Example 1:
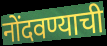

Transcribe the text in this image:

नोंदवण्याची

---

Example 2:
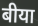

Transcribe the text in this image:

बीया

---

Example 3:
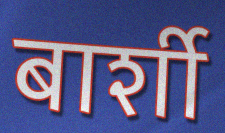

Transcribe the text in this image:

बार्शी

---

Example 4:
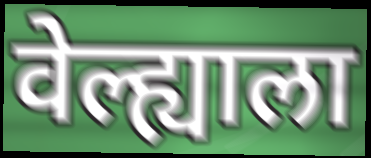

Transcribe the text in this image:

वेल्ह्याला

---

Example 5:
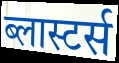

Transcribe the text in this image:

ब्लास्टर्स